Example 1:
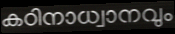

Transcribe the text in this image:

കഠിനാധ്വാനവും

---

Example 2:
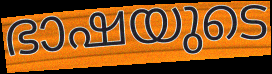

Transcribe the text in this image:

ഭാഷയുടെ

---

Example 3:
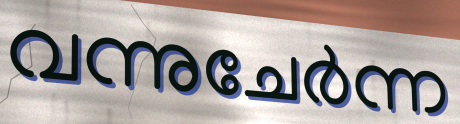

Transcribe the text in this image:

വന്നുചേർന്ന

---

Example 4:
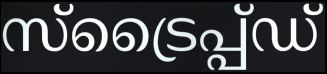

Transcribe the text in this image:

സ്ട്രൈപ്പ്ഡ്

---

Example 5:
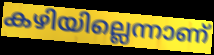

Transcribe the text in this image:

കഴിയില്ലെന്നാണ്